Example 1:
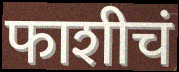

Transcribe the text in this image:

फाशीचं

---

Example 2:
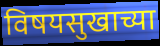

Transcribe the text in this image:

विषयसुखाच्या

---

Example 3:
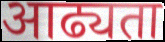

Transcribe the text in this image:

आढ्यता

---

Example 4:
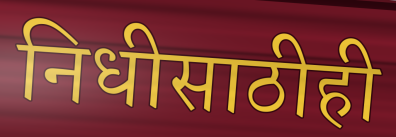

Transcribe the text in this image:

निधीसाठीही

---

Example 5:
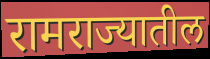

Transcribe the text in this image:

रामराज्यातील